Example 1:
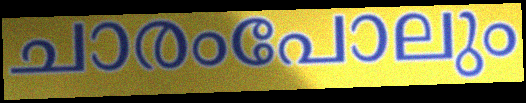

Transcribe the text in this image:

ചാരംപോലും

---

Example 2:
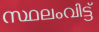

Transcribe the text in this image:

സ്ഥലംവിട്ട്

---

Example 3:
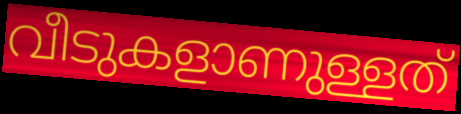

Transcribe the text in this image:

വീടുകളാണുള്ളത്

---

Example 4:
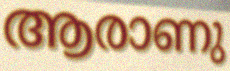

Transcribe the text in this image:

ആരാണു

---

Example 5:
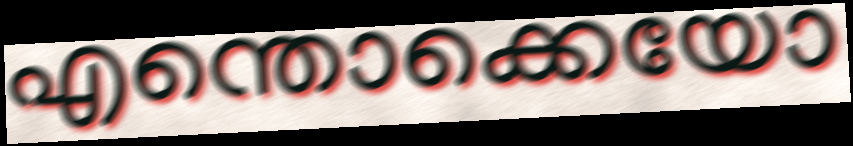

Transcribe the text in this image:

എന്തൊക്കെയോ